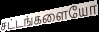
சட்டங்களையோ